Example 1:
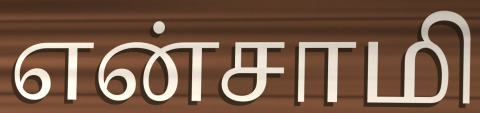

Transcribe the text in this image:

என்சாமி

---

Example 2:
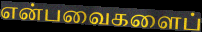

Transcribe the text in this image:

என்பவைகளைப்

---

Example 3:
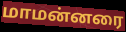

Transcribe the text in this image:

மாமன்னரை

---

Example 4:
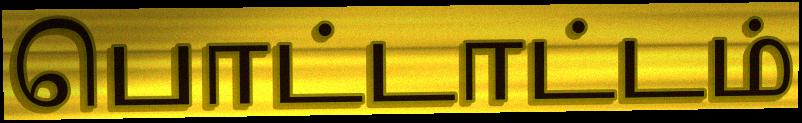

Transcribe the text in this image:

பொட்டாட்டம்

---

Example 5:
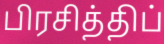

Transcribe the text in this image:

பிரசித்திப்